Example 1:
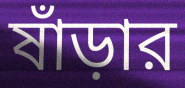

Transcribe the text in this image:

ষাঁড়ার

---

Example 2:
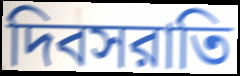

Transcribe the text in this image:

দিবসরাতি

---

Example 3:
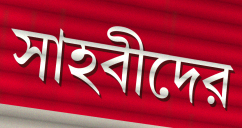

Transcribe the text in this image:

সাহবীদের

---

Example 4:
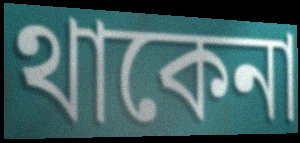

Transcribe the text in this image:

থাকেনা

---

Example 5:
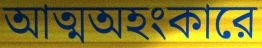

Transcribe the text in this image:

আত্মঅহংকারে